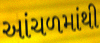
આંચળમાંથી